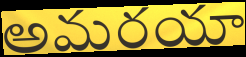
అమరయా